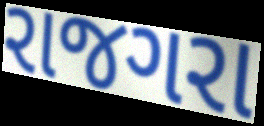
રાજગરા